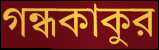
গন্ধকাকুর